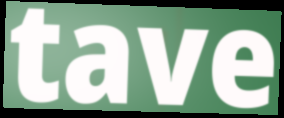
tave